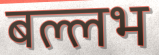
बल्लभ